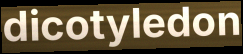
dicotyledon